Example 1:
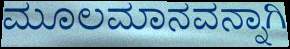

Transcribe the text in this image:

ಮೂಲಮಾನವನ್ನಾಗಿ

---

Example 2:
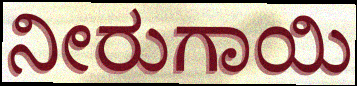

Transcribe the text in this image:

ನೀರುಗಾಯಿ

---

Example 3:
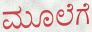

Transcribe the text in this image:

ಮೂಲೆಗೆ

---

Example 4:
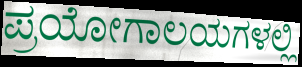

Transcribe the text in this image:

ಪ್ರಯೋಗಾಲಯಗಳಲ್ಲಿ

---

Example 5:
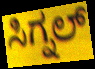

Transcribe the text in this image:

ಸಿಗ್ನಲ್